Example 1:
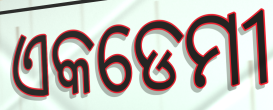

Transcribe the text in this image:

ଏକଡେମୀ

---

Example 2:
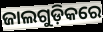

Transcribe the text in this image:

ଜାଲଗୁଡ଼ିକରେ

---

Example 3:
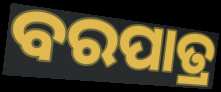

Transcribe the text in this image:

ବରପାତ୍ର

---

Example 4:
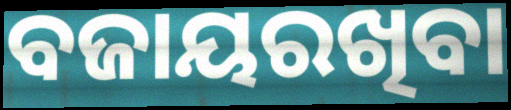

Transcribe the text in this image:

ବଜାୟରଖିବା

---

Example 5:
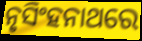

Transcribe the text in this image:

ନୃସିଂହନାଥରେ